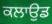
ਕਲਾਉਡ